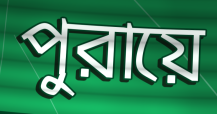
পুরায়ে